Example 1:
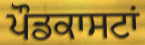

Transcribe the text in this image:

ਪੌਡਕਾਸਟਾਂ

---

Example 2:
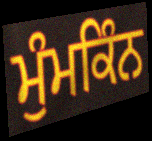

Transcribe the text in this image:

ਮੁੰਮਕਿੰਨ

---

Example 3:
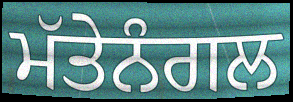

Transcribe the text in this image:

ਮੱਤੇਨੰਗਲ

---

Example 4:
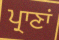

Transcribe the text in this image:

ਪ੍ਰਾਣਾਂ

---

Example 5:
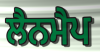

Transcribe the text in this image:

ਲੈਨਮੈਪ